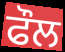
ਫੌਲ